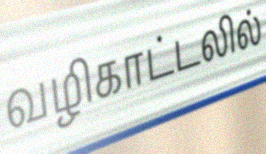
வழிகாட்டலில்